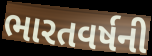
ભારતવર્ષની